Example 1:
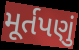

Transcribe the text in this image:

મૂર્તપણું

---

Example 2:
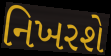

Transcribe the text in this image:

નિખરશે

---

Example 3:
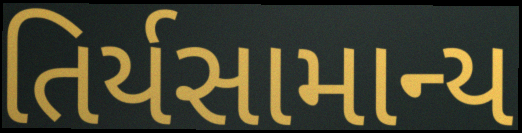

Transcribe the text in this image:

તિર્યસામાન્ય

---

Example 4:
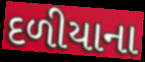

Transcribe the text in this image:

દળીયાના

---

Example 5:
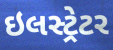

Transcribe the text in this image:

ઇલસ્ટ્રેટર